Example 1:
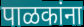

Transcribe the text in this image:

पाळकांना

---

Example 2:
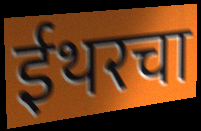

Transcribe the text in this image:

ईथरचा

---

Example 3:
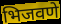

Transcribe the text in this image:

भिजवणे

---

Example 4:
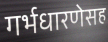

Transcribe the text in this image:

गर्भधारणेसह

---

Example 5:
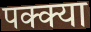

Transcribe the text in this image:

पक्क्या